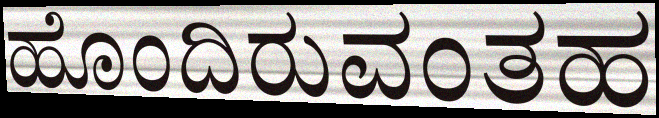
ಹೊಂದಿರುವಂತಹ